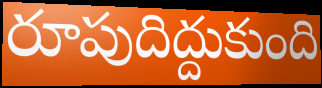
రూపుదిద్దుకుంది